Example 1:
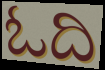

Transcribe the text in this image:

ಓದಿ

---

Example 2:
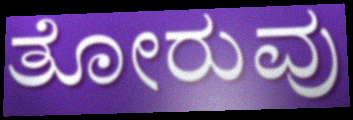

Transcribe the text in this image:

ತೋರುವು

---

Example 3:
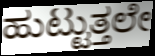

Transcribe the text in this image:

ಹುಟ್ಟುತ್ತಲೇ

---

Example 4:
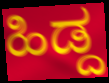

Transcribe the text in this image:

ಹಿಡ್ದ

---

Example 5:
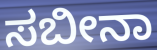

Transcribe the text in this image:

ಸಬೀನಾ